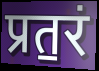
प्रत॒रं